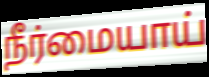
நீர்மையாய்